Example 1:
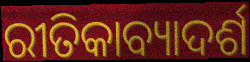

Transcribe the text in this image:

ରୀତିକାବ୍ୟାଦର୍ଶ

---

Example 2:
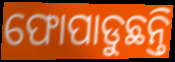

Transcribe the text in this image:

ଫୋପାଡୁଛନ୍ତି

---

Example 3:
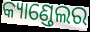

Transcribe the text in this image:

କ୍ୟାଣ୍ଡେଲର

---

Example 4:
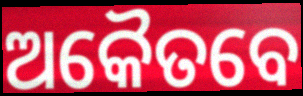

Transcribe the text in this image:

ଅକୈତବେ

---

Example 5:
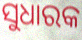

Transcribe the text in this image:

ସୁଧାରକ